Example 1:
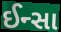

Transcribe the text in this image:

ઈન્સા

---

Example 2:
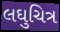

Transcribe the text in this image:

લઘુચિત્ર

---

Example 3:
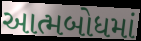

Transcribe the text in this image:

આત્મબોધમાં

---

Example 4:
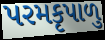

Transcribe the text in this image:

પરમકૃપાળુ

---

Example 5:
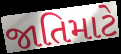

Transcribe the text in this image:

જાતિમાટે